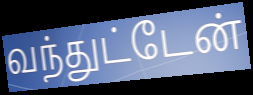
வந்துட்டேன்